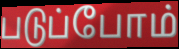
படுப்போம்